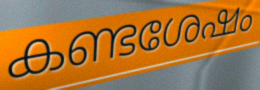
കണ്ടശേഷം